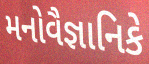
મનોવૈજ્ઞાનિકે